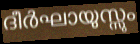
ദീർഘായുസ്സും